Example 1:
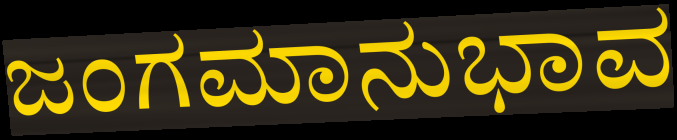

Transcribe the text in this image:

ಜಂಗಮಾನುಭಾವ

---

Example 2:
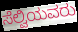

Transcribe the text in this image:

ಸೆಲ್ವಿಯವರು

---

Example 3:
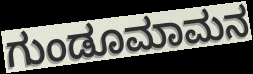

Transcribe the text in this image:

ಗುಂಡೂಮಾಮನ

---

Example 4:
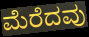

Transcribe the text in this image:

ಮೆರೆದವು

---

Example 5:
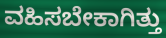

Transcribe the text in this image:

ವಹಿಸಬೇಕಾಗಿತ್ತು